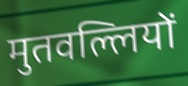
मुतवल्लियों